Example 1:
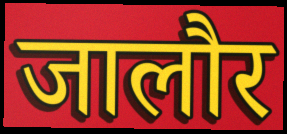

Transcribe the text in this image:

जालौर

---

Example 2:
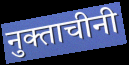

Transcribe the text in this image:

नुक्ताचीनी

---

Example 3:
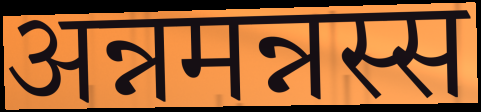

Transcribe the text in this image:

अन्नमन्नस्स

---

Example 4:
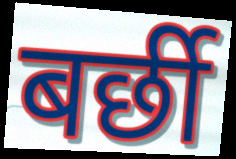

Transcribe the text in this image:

बर्छी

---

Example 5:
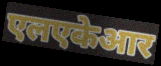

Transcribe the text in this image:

एलएकेआर